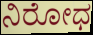
ನಿರೋಧ